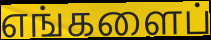
எங்களைப்